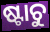
ଷ୍ଟାଚୁ